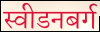
स्वीडनबर्ग